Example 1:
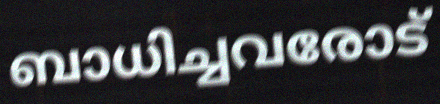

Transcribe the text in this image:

ബാധിച്ചവരോട്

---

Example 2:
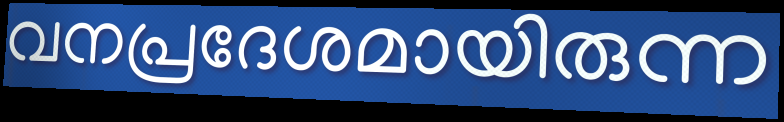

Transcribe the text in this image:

വനപ്രദേശമായിരുന്ന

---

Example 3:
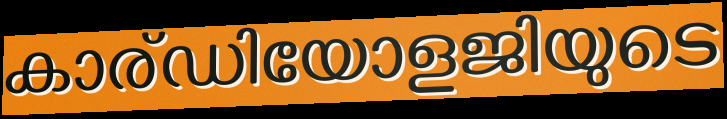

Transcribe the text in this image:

കാര്ഡിയോളജിയുടെ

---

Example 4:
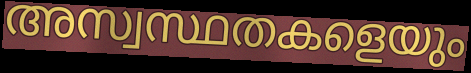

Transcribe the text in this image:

അസ്വസ്ഥതകളെയും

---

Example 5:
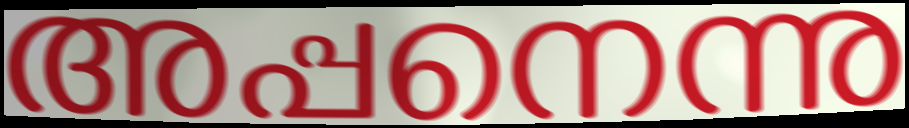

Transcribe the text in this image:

അപ്പനെന്നു